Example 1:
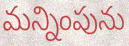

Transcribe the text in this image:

మన్నింపును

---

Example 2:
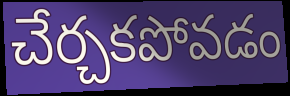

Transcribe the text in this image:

చేర్చకపోవడం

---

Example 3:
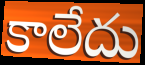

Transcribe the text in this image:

కాలేదు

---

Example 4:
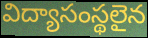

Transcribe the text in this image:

విద్యాసంస్థలైన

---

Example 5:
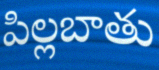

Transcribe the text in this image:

పిల్లబాతు